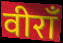
वीराँ